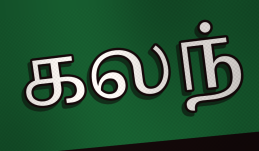
கலந்